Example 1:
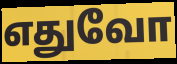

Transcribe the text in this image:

எதுவோ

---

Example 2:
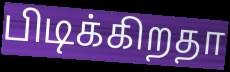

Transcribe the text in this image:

பிடிக்கிறதா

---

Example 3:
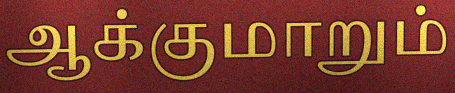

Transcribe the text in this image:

ஆக்குமாறும்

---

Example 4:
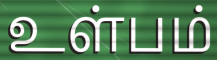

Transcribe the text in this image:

உள்பம்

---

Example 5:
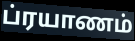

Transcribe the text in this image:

ப்ரயாணம்